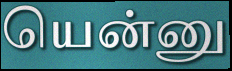
யென்னு